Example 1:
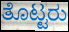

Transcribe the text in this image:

ತೊಟ್ಟರು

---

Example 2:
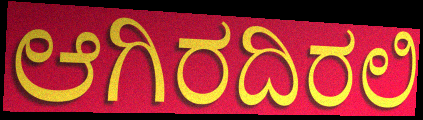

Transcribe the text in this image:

ಆಗಿರದಿರಲಿ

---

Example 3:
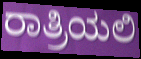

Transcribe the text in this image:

ರಾತ್ರಿಯಲಿ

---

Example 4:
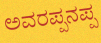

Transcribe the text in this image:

ಅವರಪ್ಪನಪ್ಪ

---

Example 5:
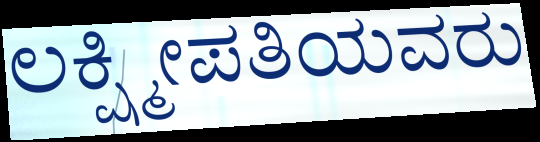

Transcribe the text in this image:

ಲಕ್ಷ್ಮೀಪತಿಯವರು